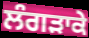
ਲੰਗੜਾਕੇ